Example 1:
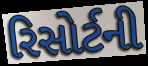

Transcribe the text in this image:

રિસોર્ટની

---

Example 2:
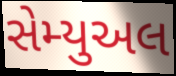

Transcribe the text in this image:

સેમ્યુઅલ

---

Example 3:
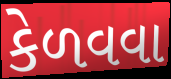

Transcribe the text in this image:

કેળવવા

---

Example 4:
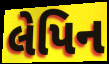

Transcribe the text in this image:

લેપિન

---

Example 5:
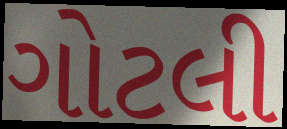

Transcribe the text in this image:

ગોટલી